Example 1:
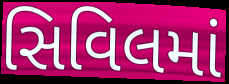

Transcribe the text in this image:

સિવિલમાં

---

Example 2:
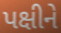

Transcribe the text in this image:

પક્ષીને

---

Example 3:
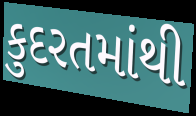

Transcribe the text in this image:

કુદરતમાંથી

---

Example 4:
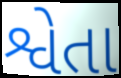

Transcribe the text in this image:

શ્વેતા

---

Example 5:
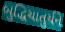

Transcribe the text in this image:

બુદ્ધિચાતુર્યને